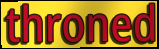
throned